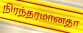
நிரந்தரமானதா